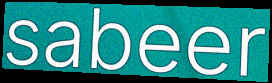
sabeer